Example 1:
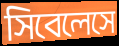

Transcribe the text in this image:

সিবেলেসে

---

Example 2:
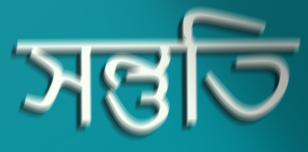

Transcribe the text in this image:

সন্তুতি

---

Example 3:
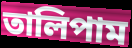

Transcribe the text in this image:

তালিপাম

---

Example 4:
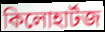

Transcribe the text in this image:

কিলোহার্টজ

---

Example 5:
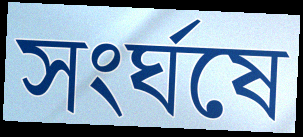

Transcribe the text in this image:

সংর্ঘষে